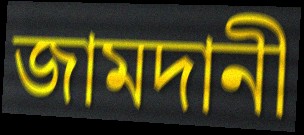
জামদানী